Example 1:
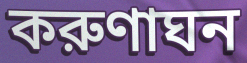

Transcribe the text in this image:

করুণাঘন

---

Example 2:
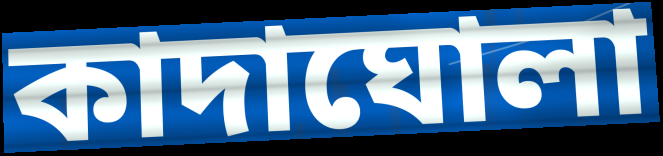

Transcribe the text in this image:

কাদাঘোলা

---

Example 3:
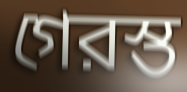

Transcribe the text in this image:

গেরস্ত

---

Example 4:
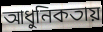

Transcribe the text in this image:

আধুনিকতায়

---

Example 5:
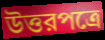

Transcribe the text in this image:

উত্তরপত্রে